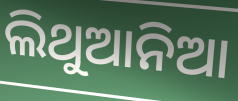
ଲିଥୁଆନିଆ